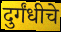
दुर्गंधीचे